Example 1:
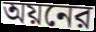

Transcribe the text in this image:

অয়নের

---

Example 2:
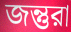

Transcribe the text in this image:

জন্তুরা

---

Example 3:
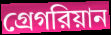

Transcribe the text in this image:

গ্রেগরিয়ান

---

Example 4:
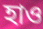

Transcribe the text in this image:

হাও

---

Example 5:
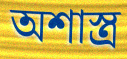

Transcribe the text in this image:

অশাস্ত্র